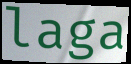
laga